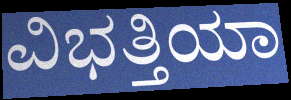
ವಿಭತ್ತಿಯಾ